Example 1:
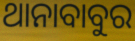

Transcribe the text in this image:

ଥାନାବାବୁର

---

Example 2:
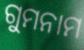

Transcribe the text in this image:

ଗୁମନାମ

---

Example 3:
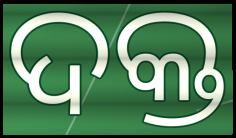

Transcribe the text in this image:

ଦକ୍ତ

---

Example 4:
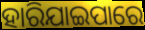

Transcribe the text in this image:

ହାରିଯାଇପାରେ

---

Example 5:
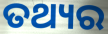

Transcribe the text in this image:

ତଥ୍ୟର